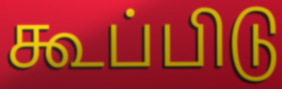
கூப்பிடு